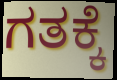
ಗತಕ್ಕೆ